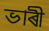
ভাৰী